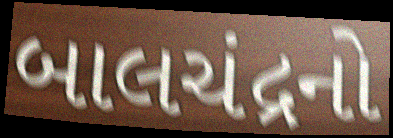
બાલચંદ્રનો